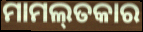
ମାମଲ୍‌ତକାର